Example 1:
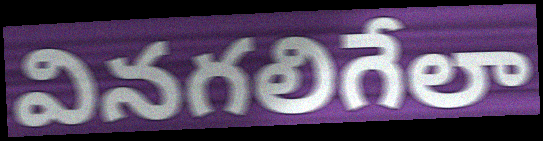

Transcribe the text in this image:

వినగలిగేలా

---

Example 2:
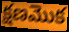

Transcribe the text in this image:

క్షణమొక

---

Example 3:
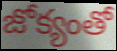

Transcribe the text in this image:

జోక్యంతో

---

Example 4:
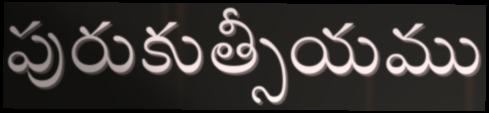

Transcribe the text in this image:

పురుకుత్సీయము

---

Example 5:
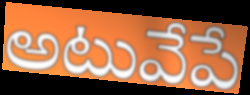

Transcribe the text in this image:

అటువేపే